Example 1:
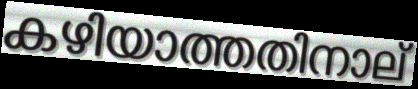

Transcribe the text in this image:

കഴിയാത്തതിനാല്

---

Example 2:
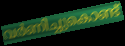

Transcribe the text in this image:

വർണിച്ചുകൊണ്ട്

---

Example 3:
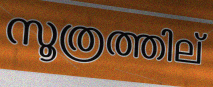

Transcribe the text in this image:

സൂത്രത്തില്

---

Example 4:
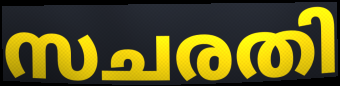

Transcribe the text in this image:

സചരതി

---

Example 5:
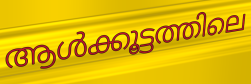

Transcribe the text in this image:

ആൾക്കൂട്ടത്തിലെ